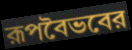
রূপবৈভবের